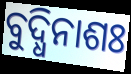
ବୁଦ୍ଧିନାଶଃ